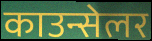
काउन्सेलर